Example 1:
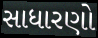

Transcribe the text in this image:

સાધારણો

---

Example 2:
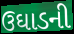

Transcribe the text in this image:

ઉઘાડની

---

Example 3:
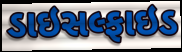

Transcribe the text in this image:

ડાઇસલ્ફાઇડ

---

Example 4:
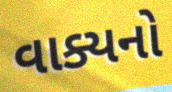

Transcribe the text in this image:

વાક્યનો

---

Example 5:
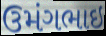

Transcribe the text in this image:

ઉમંગભાઇ